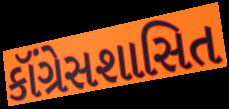
કૉંગ્રેસશાસિત